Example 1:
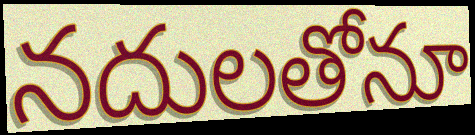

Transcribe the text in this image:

నదులతోనూ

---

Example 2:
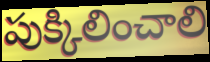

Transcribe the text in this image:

పుక్కిలించాలి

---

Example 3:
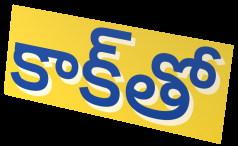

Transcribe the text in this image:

కాక్‌తో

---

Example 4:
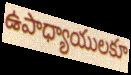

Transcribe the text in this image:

ఉపాధ్యాయులకూ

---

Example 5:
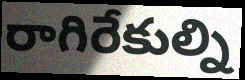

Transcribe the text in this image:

రాగిరేకుల్ని